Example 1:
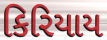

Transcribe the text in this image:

કિરિયાય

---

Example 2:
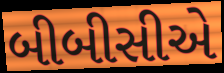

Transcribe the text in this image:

બીબીસીએ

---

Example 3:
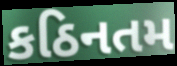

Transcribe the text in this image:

કઠિનતમ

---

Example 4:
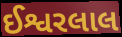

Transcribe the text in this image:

ઈશ્વરલાલ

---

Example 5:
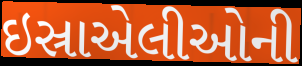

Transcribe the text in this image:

ઇસ્રાએલીઓની